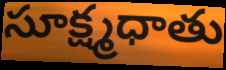
సూక్ష్మధాతు